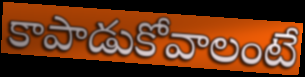
కాపాడుకోవాలంటే